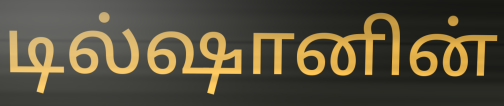
டில்ஷானின்